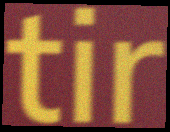
tir